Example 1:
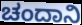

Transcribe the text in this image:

ಚಂದಾನಿ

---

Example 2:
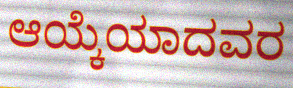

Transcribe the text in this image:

ಆಯ್ಕೆಯಾದವರ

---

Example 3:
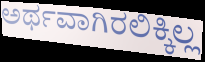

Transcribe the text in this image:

ಅರ್ಥವಾಗಿರಲಿಕ್ಕಿಲ್ಲ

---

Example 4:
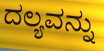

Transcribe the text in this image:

ದಲ್ಯವನ್ನು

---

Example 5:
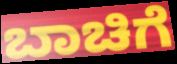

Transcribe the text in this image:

ಬಾಚಿಗೆ